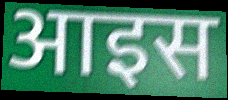
आइस